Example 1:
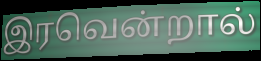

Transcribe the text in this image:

இரவென்றால்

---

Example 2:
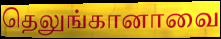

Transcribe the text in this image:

தெலுங்கானாவை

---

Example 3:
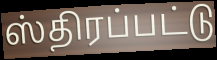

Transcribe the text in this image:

ஸ்திரப்பட்டு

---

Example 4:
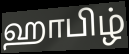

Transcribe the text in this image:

ஹாபிழ்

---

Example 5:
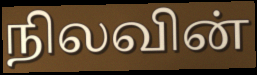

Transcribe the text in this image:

நிலவின்